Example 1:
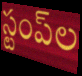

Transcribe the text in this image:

స్టంప్‌ల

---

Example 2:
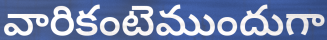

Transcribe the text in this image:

వారికంటెముందుగా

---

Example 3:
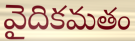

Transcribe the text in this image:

వైదికమతం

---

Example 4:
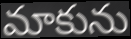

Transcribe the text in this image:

మాకును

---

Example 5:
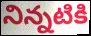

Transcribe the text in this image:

నిన్నటికి